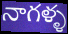
నాగళ్ళ